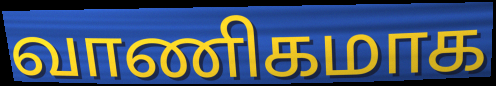
வாணிகமாக